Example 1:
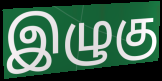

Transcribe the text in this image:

இழுகு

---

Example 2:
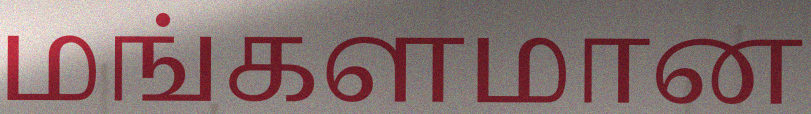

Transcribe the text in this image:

மங்களமான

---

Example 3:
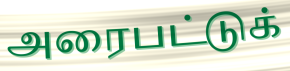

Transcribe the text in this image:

அரைபட்டுக்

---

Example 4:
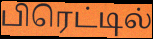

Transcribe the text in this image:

பிரெட்டில்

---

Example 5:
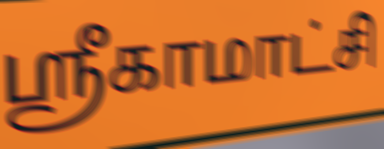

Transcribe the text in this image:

ஸ்ரீகாமாட்சி